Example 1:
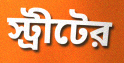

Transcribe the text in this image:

স্ট্রীটের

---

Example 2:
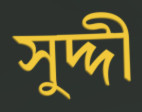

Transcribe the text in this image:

সুদ্দী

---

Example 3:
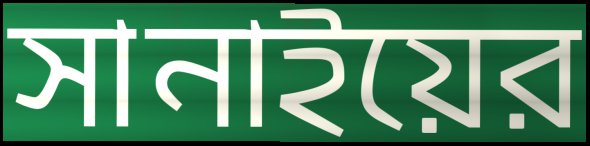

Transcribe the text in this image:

সানাইয়ের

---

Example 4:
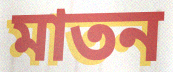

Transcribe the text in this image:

মাতন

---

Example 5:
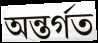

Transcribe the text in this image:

অন্তর্গত